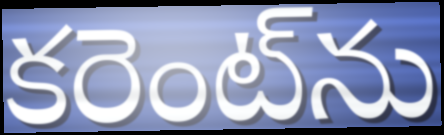
కరెంట్‌ను